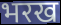
भरख